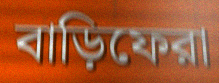
বাড়িফেরা